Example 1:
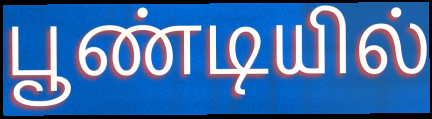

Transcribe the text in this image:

பூண்டியில்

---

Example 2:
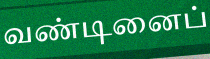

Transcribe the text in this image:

வண்டினைப்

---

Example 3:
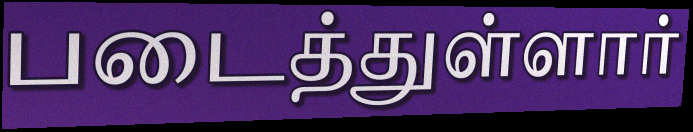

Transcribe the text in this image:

படைத்துள்ளார்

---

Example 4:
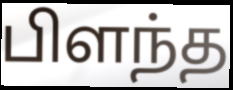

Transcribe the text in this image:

பிளந்த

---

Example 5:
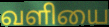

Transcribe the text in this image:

வளியை